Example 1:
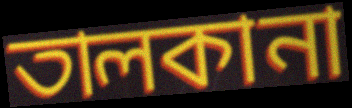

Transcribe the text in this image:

তালকানা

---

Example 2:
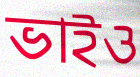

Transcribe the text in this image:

ভাইও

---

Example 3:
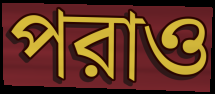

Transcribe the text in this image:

পরাও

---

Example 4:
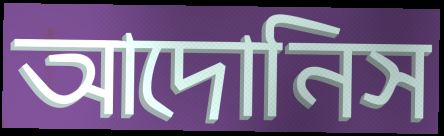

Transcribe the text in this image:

আদোনিস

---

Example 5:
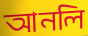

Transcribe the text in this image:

আনলি